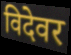
विदेवर